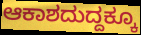
ಆಕಾಶದುದ್ದಕ್ಕೂ